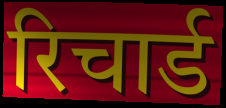
रिचार्ड